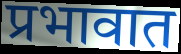
प्रभावात